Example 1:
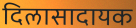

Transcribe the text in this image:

दिलासादायक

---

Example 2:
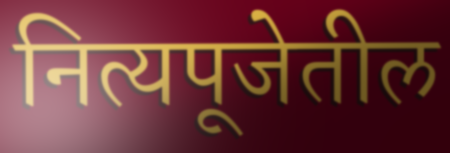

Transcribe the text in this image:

नित्यपूजेतील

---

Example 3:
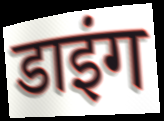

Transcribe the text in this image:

डाइंग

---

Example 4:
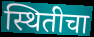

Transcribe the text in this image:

स्थितीचा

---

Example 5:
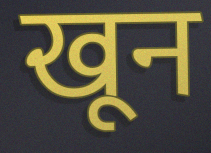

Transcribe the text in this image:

खून